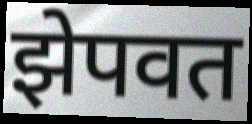
झेपवत